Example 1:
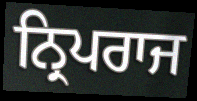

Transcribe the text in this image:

ਨ੍ਰਿਪਰਾਜ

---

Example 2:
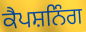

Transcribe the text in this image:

ਕੈਪਸ਼ਨਿੰਗ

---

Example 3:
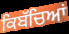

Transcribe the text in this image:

ਕਿਬੱਚਿਆਂ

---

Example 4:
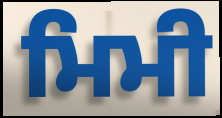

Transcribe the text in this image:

ਮਿਮੀ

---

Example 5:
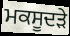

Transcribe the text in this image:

ਮਕਸੂਦੜੇ